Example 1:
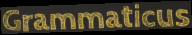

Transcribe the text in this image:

Grammaticus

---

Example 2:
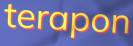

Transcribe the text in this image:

terapon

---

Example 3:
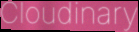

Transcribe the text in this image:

Cloudinary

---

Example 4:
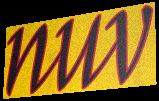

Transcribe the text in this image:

nuv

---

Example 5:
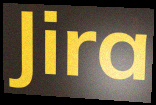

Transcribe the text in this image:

Jira